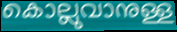
കൊല്ലുവാനുള്ള